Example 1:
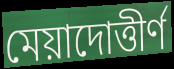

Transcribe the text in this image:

মেয়াদোত্তীর্ণ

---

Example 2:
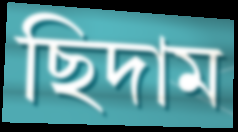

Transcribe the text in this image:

ছিদাম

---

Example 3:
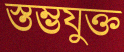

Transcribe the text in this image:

স্তম্ভযুক্ত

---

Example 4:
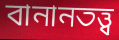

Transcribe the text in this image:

বানানতত্ত্ব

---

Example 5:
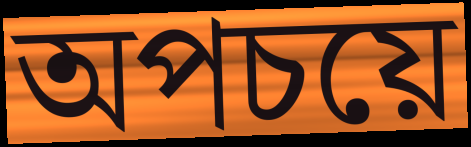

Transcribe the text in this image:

অপচয়ে